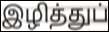
இழித்துப்